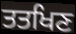
ਤਤਖਿਣ